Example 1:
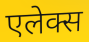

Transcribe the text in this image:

एलेक्स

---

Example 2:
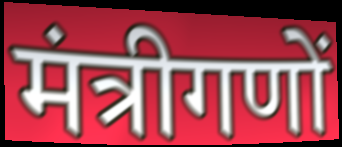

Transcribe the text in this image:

मंत्रीगणों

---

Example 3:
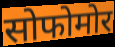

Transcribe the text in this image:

सोफोमोर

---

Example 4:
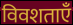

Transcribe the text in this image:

विवशताएँ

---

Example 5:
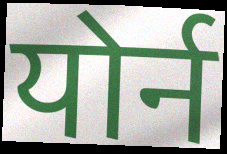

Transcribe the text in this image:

योर्न